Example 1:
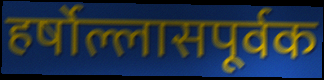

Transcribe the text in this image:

हर्षोल्लासपूर्वक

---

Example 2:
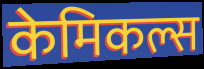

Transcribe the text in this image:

केमिकल्स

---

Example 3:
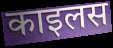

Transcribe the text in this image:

काइलस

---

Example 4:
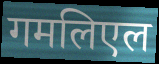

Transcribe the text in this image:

गमलिएल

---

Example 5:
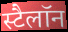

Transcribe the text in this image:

स्टैलॉन